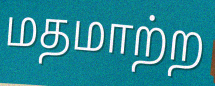
மதமாற்ற